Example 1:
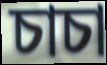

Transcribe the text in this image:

চাচা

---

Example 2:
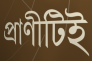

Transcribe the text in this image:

প্রাণীটিই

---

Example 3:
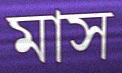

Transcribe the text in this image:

মাস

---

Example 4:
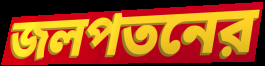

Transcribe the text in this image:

জলপতনের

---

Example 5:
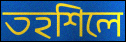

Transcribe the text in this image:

তহশিলে